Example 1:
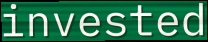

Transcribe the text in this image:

invested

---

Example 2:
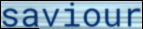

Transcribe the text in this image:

saviour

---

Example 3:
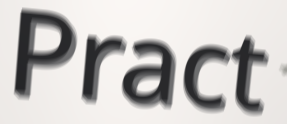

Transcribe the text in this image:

Pract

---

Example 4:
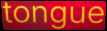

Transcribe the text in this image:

tongue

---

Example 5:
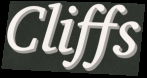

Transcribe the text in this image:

Cliffs